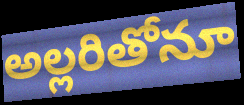
అల్లరితోనూ